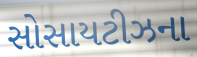
સોસાયટીઝના